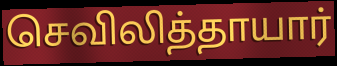
செவிலித்தாயார்